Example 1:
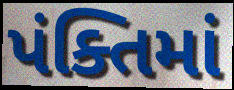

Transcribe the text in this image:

પંક્તિમાં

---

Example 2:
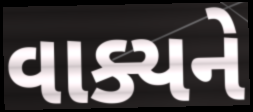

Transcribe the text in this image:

વાક્યને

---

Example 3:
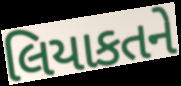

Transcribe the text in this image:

લિયાકતને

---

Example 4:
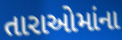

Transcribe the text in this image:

તારાઓમાંના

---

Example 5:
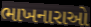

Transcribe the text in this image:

ભાખનારાઓ